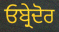
ਓਬ੍ਰੇਦੋਰ